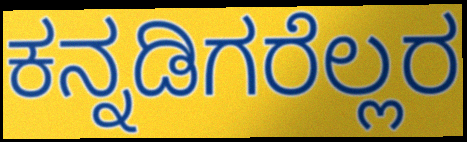
ಕನ್ನಡಿಗರೆಲ್ಲರ